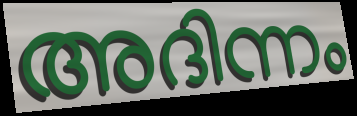
അദിന്നം